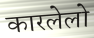
कारलेलो